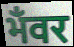
भँवर